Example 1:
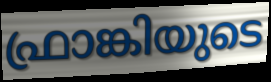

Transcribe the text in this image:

ഫ്രാങ്കിയുടെ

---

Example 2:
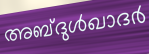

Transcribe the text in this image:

അബ്ദുൾഖാദർ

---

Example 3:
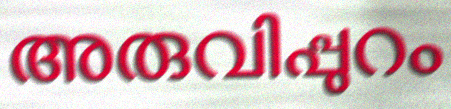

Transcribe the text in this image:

അരുവിപ്പുറം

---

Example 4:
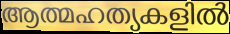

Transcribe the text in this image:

ആത്മഹത്യകളിൽ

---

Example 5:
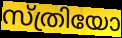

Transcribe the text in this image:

സ്ത്രിയോ